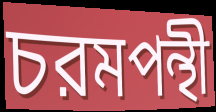
চরমপন্থী